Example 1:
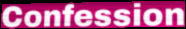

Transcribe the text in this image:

Confession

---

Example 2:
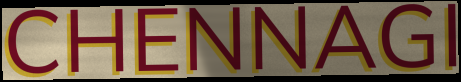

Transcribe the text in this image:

CHENNAGI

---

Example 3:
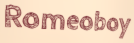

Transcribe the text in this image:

Romeoboy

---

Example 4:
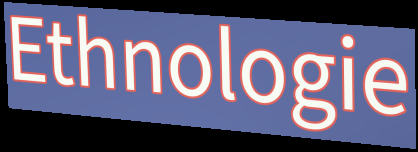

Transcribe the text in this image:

Ethnologie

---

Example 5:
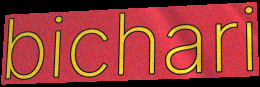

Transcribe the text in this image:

bichari